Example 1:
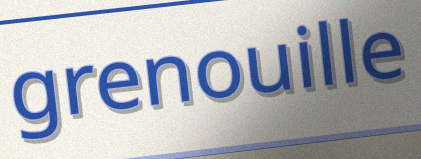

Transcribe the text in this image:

grenouille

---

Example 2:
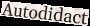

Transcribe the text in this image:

Autodidact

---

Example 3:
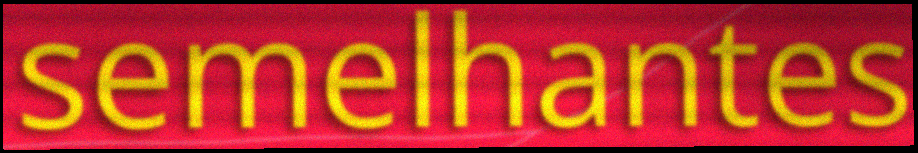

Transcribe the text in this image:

semelhantes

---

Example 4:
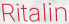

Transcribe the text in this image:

Ritalin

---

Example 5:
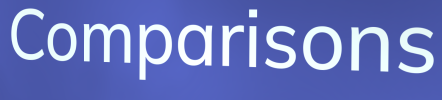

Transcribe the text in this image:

Comparisons